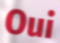
Oui